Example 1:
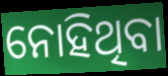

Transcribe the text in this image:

ନୋହିଥିବା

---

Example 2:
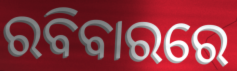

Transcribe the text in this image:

ରବିବାରରେ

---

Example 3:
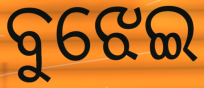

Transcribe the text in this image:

ବୁଝେଇ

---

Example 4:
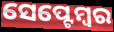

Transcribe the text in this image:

ସେପ୍ଟେମ୍ୱର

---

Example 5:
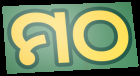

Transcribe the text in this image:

ମଠ